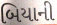
બિયાની